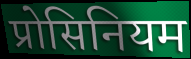
प्रोसिनियम